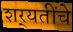
शर्यतींचे